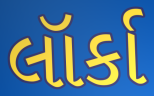
લૉર્કા